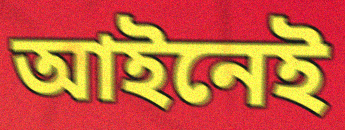
আইনেই